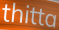
thitta